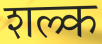
शल्क